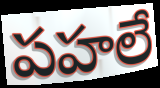
పహలే